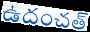
ఉదంచత్